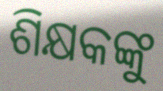
ଶିକ୍ଷକଙ୍କୁ